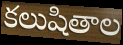
కలుషితాల